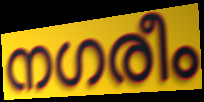
നഗരീം